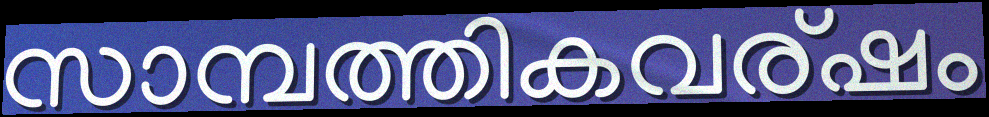
സാമ്പത്തികവര്ഷം